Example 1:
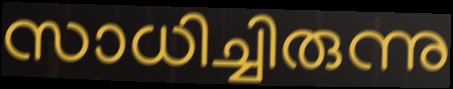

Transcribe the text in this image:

സാധിച്ചിരുന്നു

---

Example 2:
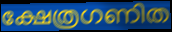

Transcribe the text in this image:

ക്ഷേത്രഗണിത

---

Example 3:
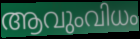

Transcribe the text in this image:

ആവുംവിധം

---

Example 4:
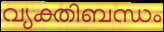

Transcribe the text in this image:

വ്യക്തിബന്ധം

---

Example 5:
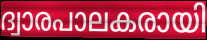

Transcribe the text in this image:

ദ്വാരപാലകരായി